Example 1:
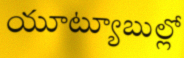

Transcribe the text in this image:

యూట్యూబుల్లో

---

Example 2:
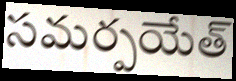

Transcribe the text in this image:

సమర్పయేత్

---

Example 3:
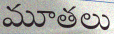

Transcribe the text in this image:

మూతలు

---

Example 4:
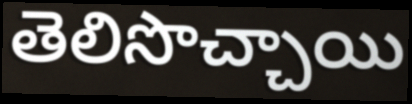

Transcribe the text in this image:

తెలిసొచ్చాయి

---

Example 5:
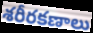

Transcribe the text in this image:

శరీరకణాలు